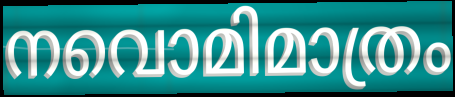
നവൊമിമാത്രം